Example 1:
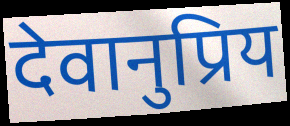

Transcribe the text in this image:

देवानुप्रिय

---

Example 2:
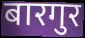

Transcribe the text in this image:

बारगुर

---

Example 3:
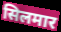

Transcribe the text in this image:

सिलमार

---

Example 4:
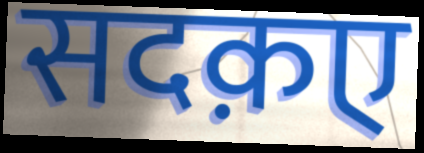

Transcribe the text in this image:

सदक़ए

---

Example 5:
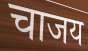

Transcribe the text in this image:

चाजय